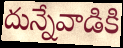
దున్నేవాడికి